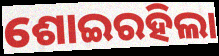
ଶୋଇରହିଲା